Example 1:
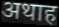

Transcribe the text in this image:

अथाह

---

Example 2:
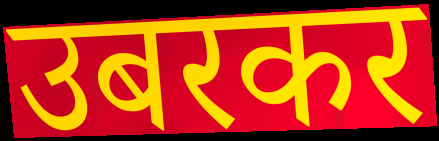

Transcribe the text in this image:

उबरकर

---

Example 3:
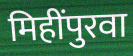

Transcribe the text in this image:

मिहींपुरवा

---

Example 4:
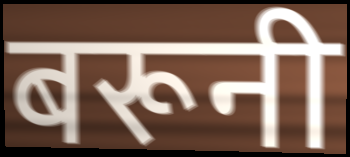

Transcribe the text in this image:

बरूनी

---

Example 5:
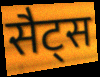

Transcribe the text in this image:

सैट्स